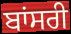
ਬਾਂਸਰੀ